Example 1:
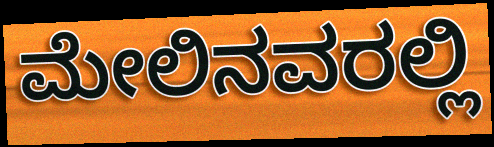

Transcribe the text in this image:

ಮೇಲಿನವರಲ್ಲಿ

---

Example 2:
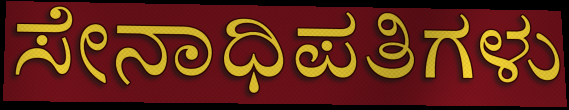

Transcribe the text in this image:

ಸೇನಾಧಿಪತಿಗಳು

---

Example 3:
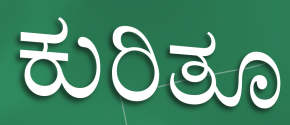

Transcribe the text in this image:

ಕುರಿತೂ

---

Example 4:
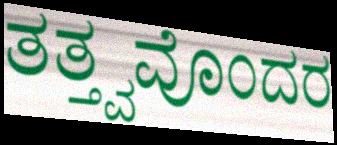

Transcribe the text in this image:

ತತ್ತ್ವವೊಂದರ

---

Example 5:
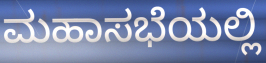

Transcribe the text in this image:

ಮಹಾಸಭೆಯಲ್ಲಿ